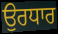
ਉਰਧਾਰ